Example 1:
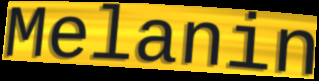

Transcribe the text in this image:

Melanin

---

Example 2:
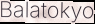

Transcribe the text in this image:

Balatokyo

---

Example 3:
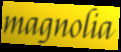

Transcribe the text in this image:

magnolia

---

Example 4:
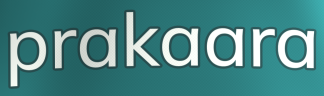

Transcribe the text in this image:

prakaara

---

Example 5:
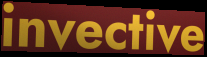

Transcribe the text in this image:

invective